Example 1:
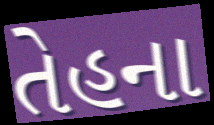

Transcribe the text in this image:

તેહના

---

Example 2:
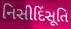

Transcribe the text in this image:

નિસીદિંસૂતિ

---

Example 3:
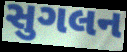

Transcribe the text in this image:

સુગલન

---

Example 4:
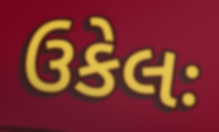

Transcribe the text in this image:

ઉકેલઃ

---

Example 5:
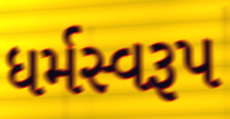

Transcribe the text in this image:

ધર્મસ્વરૂપ